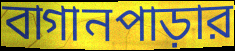
বাগানপাড়ার